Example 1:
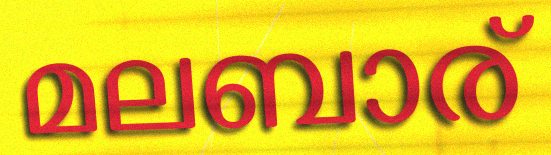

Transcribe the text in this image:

മലബാര്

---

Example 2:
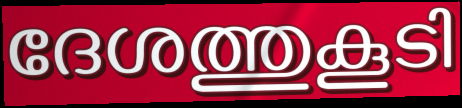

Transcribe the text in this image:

ദേശത്തുകൂടി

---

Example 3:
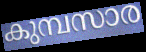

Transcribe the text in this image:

കുമ്പസാര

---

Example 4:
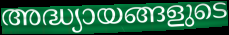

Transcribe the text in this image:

അദ്ധ്യായങ്ങളുടെ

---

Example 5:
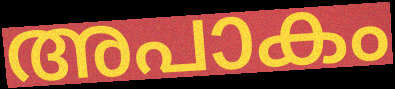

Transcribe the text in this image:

അപാകം